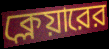
ক্লেয়ারের